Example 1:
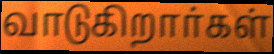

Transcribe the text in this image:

வாடுகிறார்கள்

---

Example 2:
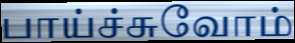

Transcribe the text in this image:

பாய்ச்சுவோம்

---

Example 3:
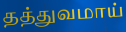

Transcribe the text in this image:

தத்துவமாய்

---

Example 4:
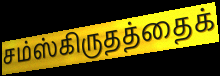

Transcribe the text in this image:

சம்ஸ்கிருதத்தைக்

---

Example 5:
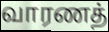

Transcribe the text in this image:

வாரணத்